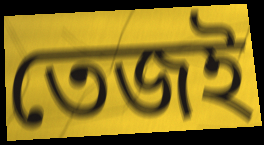
তেজই